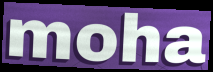
moha